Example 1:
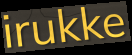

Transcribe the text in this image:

irukke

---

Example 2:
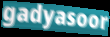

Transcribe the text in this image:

gadyasoor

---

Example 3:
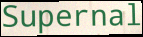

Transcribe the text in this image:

Supernal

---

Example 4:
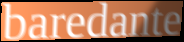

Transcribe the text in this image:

baredante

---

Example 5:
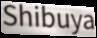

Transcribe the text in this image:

Shibuya